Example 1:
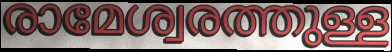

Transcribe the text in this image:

രാമേശ്വരത്തുള്ള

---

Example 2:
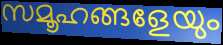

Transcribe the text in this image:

സമൂഹങ്ങളേയും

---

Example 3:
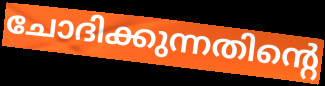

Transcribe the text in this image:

ചോദിക്കുന്നതിന്റെ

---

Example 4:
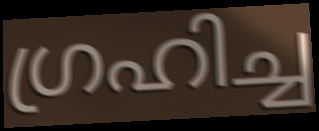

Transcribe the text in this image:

ഗ്രഹിച്ച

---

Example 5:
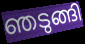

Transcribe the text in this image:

ഞടുങ്ങി